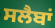
ਸਲੈਬਾਂ